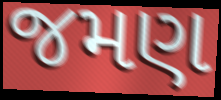
જમણ